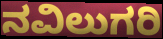
ನವಿಲುಗರಿ